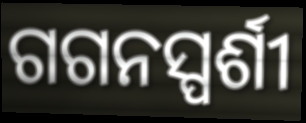
ଗଗନସ୍ପର୍ଶୀ